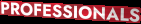
PROFESSIONALS